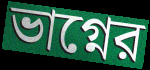
ভাগ্নের